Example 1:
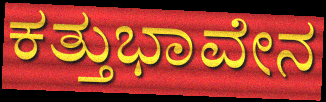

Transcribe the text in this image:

ಕತ್ತುಭಾವೇನ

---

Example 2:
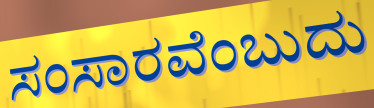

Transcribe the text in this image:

ಸಂಸಾರವೆಂಬುದು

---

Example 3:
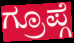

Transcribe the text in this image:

ಗ್ರೂಪ್ಗೆ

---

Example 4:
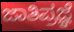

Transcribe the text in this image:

ಜಾತಿಪ್ರಜ್ಞೆ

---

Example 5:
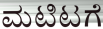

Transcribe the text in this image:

ಮಟಿಟಗೆ